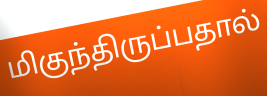
மிகுந்திருப்பதால்